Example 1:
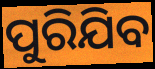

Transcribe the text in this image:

ପୁରିଯିବ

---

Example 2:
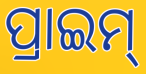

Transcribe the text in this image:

ପ୍ରାଇମ୍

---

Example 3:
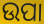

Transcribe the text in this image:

ଉପା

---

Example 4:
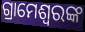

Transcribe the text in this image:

ଗ୍ରାମେଶ୍ୱରଙ୍କ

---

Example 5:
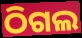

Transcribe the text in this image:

ଠିଗଲ